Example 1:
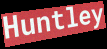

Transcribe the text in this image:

Huntley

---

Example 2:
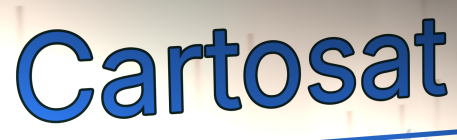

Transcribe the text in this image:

Cartosat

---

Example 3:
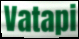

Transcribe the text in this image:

Vatapi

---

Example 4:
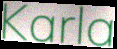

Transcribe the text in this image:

Karla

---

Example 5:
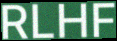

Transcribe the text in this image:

RLHF